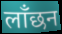
लाँछन